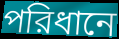
পরিধানে